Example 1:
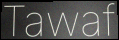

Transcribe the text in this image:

Tawaf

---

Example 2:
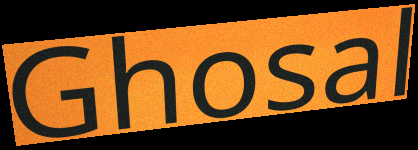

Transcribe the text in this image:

Ghosal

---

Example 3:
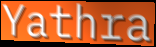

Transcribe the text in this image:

Yathra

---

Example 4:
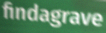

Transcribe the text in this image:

findagrave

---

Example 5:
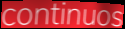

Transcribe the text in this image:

continuos